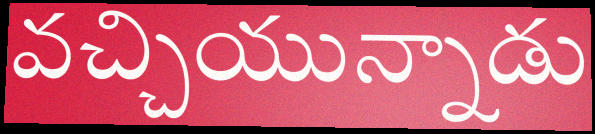
వచ్చియున్నాడు